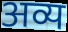
अव्य